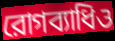
রোগব্যাধিও